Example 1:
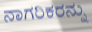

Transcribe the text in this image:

ನಾಗರಿಕರನ್ನು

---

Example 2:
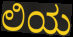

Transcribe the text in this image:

ಲಿಯ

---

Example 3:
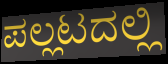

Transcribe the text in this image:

ಪಲ್ಲಟದಲ್ಲಿ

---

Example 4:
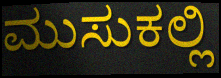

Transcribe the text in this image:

ಮುಸುಕಲ್ಲಿ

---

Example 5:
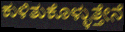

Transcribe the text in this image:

ಕುಳಿತುಕೊಳ್ಳುತ್ತೇನೆ